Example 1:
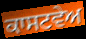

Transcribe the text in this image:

ਕਾਸਟਵੇਅ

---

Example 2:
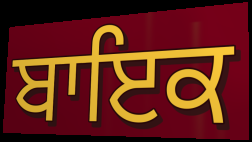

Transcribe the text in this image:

ਬਾਇਕ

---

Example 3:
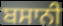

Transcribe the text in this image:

ਬਸਾਨੀ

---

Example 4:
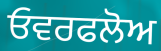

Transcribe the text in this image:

ਓਵਰਫਲੋਅ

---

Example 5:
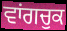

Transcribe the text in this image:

ਵਾਂਗਚੁਕ